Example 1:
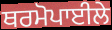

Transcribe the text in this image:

ਥਰਮੋਪਾਈਲੇ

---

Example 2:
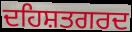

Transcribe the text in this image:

ਦਹਿਸ਼ਤਗਰਦ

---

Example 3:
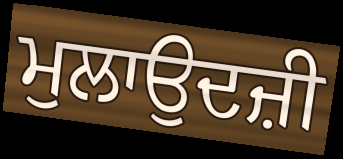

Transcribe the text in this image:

ਮੁਲਾਉਦਜ਼ੀ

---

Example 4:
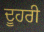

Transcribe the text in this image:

ਦੂਹਰੀ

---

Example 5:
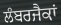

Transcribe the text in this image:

ਲੰਬਰਜੈਕਾਂ